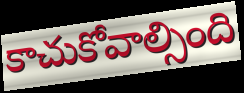
కాచుకోవాల్సింది